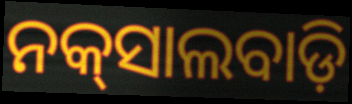
ନକ୍‌ସାଲବାଡ଼ି